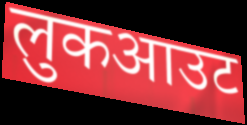
लुकआउट